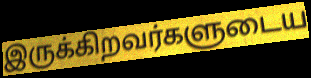
இருக்கிறவர்களுடைய